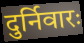
दुर्निवारः